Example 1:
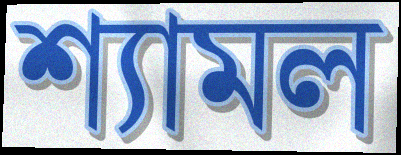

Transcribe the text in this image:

শ্যামল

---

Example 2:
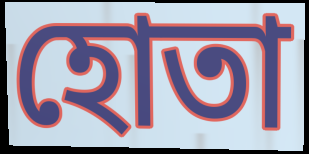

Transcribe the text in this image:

হোতা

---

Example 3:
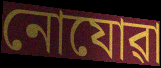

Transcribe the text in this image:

নোযোৱা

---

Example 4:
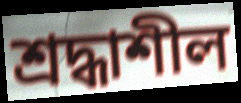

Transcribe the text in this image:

শ্ৰদ্ধাশীল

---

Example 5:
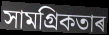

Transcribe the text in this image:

সামগ্ৰিকতাৰ